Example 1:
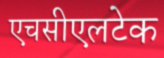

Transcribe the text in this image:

एचसीएलटेक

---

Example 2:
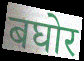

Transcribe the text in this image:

बघोर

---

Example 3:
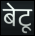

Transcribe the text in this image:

बेटू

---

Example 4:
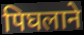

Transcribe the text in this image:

पिघलाने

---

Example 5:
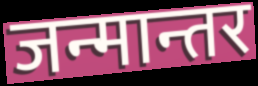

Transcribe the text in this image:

जन्मान्तर